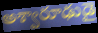
అశ్వారూఢుడై